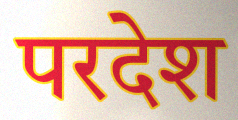
परदेश